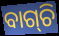
ବାଗ୍‌ଚି